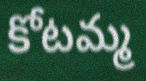
కోటమ్మ